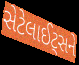
સેટેલાઈટ્સને